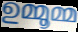
ഉമ്മൂമ്മ